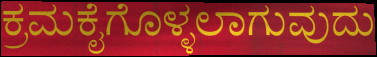
ಕ್ರಮಕೈಗೊಳ್ಳಲಾಗುವುದು